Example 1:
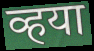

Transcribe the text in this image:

व्हया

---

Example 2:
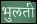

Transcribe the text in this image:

भुलती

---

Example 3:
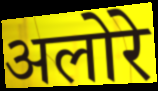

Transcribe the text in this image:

अलोरे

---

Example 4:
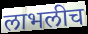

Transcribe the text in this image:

लाभलीच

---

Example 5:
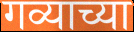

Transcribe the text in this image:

गव्याच्या